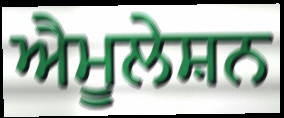
ਐਮੂਲੇਸ਼ਨ